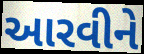
આરવીને